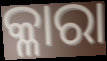
କ୍ଳାରା